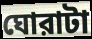
ঘোরাটা